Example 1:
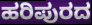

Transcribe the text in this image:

ಹರಿಪುರದ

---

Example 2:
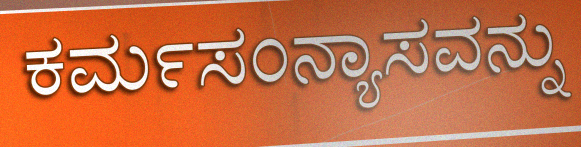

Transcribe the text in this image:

ಕರ್ಮಸಂನ್ಯಾಸವನ್ನು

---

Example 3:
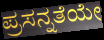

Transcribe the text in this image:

ಪ್ರಸನ್ನತೆಯೇ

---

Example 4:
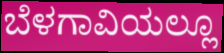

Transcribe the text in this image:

ಬೆಳಗಾವಿಯಲ್ಲೂ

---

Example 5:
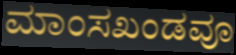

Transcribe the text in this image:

ಮಾಂಸಖಂಡವೂ